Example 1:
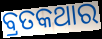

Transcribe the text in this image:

ବ୍ରତକଥାର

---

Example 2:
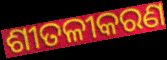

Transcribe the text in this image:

ଶୀତଳୀକରଣ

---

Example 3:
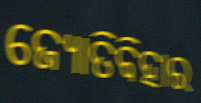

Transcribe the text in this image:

ଜ୍ୟୋତିବିହାର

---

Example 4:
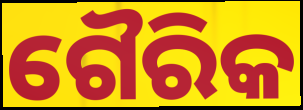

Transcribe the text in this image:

ଗୈରିକ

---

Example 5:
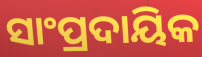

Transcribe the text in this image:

ସାଂପ୍ରଦାୟିକ